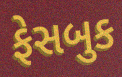
ફેસબુક